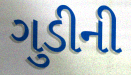
ગુડીની